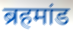
ब्रहमांड